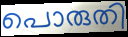
പൊരുതി